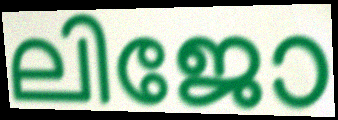
ലിജോ